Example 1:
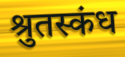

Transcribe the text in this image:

श्रुतस्कंध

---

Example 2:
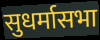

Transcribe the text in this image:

सुधर्मासभा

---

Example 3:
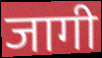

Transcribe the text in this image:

जागी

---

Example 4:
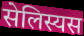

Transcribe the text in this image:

सेलिस्यस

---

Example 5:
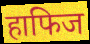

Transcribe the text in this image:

हाफिज